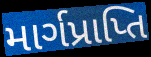
માર્ગપ્રાપ્તિ